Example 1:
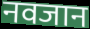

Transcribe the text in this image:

नवजान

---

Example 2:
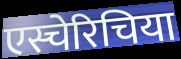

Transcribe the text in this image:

एस्चेरिचिया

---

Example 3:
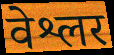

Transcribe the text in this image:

वेश्लर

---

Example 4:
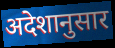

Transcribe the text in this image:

अदेशानुसार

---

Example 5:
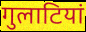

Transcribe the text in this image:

गुलाटियां